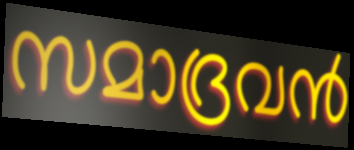
സമാദ്രവൻ